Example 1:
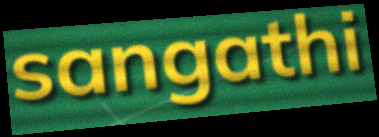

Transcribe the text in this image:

sangathi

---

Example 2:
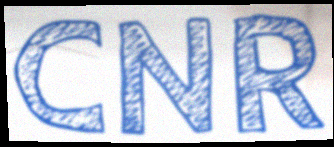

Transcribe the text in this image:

CNR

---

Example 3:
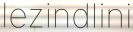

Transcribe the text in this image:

lezindlini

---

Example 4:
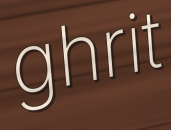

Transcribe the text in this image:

ghrit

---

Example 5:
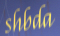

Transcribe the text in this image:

shbda